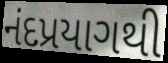
નંદપ્રયાગથી